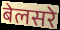
बेलसरे